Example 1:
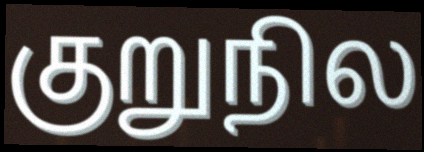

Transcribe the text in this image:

குறுநில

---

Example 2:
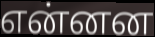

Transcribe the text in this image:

என்னன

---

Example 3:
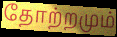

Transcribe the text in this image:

தோற்றமும்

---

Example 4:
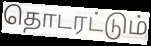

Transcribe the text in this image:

தொடரட்டும்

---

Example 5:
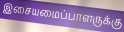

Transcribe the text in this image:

இசையமைப்பாளருக்கு